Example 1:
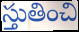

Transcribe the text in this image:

స్తుతించి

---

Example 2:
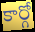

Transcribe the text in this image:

కార్గో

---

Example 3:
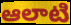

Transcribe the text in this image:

ఆలాటి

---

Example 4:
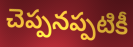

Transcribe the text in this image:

చెప్పనప్పటికీ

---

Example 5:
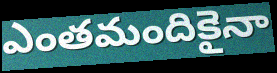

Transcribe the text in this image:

ఎంతమందికైనా